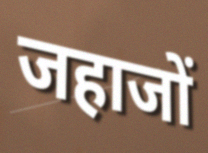
जहाजों